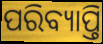
ପରିବ୍ୟାପ୍ତି